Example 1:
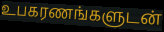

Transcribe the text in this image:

உபகரணங்களுடன்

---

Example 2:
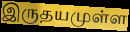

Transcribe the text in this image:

இருதயமுள்ள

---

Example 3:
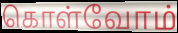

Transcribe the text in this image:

கொள்வோம்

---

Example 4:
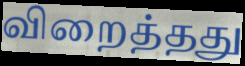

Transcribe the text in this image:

விறைத்தது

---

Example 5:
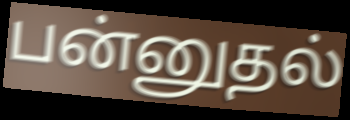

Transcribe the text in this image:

பன்னுதல்